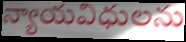
న్యాయవిధులను